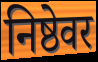
निष्ठेवर